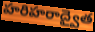
హరిహరాద్వైత